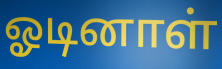
ஓடினாள்